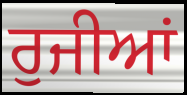
ਰੁਜੀਆਂ